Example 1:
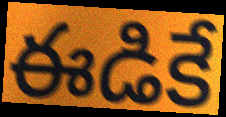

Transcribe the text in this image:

ఈడికే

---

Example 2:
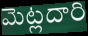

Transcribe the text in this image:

మెట్లదారి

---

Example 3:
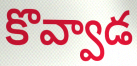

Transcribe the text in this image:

కొవ్వాడ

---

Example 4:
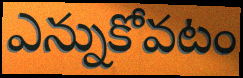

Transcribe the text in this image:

ఎన్నుకోవటం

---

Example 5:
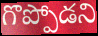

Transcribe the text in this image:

గొప్పోడని